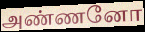
அண்ணனோ